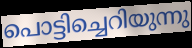
പൊട്ടിച്ചെറിയുന്നു